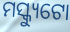
ମସ୍କ୍ୟୁଟୋ